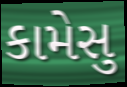
કામેસુ